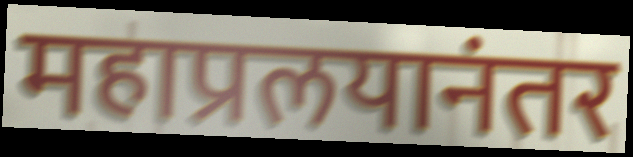
महाप्रलयानंतर